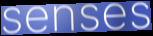
senses